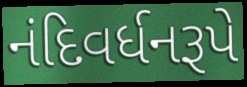
નંદિવર્ધનરૂપે